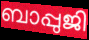
ബാപ്പുജി